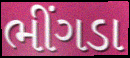
ભીંગડા